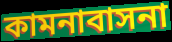
কামনাবাসনা